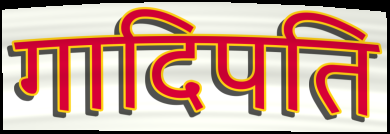
गादिपति